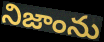
నిజాంను